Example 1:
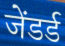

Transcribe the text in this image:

जेंडर्ड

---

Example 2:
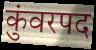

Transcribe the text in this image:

कुंवरपद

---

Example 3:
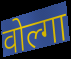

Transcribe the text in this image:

वोल्गा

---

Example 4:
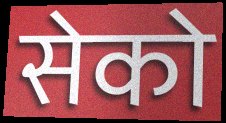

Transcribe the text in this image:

सेको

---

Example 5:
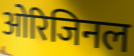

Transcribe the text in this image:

ओरिजिनल